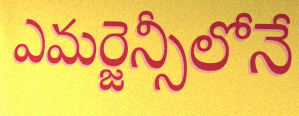
ఎమర్జెన్సీలోనే